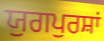
ਯੁਗਪੁਰਸ਼ਾਂ